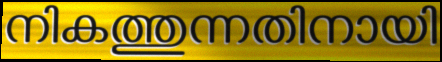
നികത്തുന്നതിനായി